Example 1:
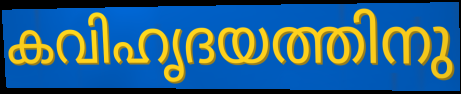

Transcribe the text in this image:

കവിഹൃദയത്തിനു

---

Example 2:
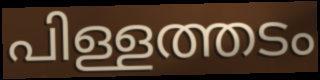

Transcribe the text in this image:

പിള്ളത്തടം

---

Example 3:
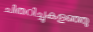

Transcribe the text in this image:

ചിതറിച്ചുകളഞ്ഞു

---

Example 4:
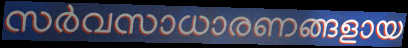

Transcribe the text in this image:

സർവസാധാരണങ്ങളായ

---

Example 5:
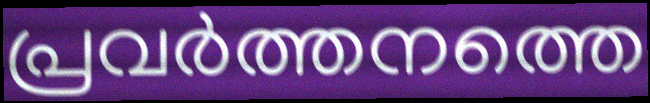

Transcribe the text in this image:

പ്രവർത്തനത്തെ